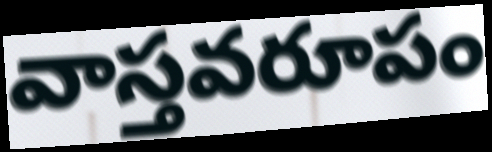
వాస్తవరూపం